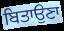
ਬਿਤਾਉਣਾ